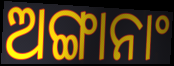
ଅଙ୍ଗାନାଂ